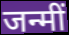
जन्मीं